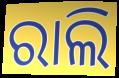
ରାଲି